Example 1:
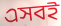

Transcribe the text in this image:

এসবই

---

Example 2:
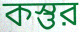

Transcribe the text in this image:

কস্তুর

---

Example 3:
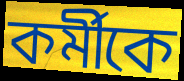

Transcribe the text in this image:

কর্মীকে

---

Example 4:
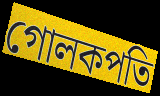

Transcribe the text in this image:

গোলকপতি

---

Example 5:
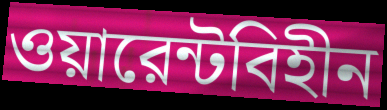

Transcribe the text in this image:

ওয়ারেন্টবিহীন